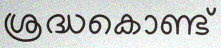
ശ്രദ്ധകൊണ്ട്